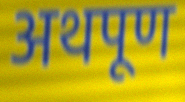
अथपूण